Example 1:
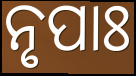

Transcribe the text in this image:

ନୃପାଃ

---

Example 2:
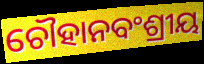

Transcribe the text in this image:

ଚୌହାନବଂଶ୍ରୀୟ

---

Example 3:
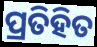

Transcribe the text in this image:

ପ୍ରତିହିତ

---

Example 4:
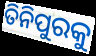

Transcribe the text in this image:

ତିନିପୁରକୁ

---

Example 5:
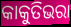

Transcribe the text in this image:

କାକୁତିଭରା